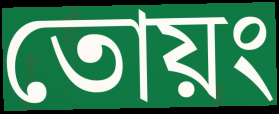
তোয়ং